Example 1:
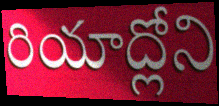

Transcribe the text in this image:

రియాద్లోని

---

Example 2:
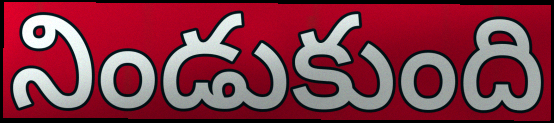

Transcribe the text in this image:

నిండుకుంది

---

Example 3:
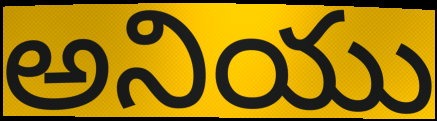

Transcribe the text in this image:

అనియు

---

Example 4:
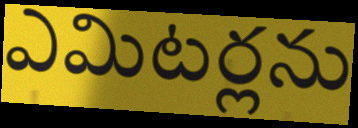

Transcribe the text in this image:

ఎమిటర్లను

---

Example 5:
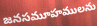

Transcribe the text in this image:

జనసమూహములను